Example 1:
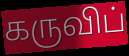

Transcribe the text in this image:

கருவிப்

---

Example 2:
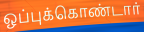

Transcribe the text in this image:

ஒப்புக்கொண்டார்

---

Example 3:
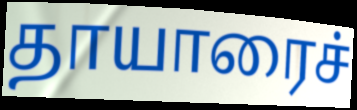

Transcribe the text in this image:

தாயாரைச்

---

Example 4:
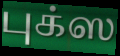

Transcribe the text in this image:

புக்ஸ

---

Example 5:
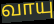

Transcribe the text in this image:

வாயு